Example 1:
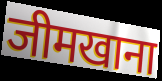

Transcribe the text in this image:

जीमखाना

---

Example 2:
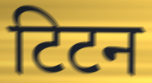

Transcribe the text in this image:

टिटन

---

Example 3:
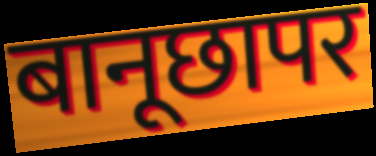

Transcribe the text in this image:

बानूछापर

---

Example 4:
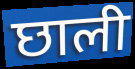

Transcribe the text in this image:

छाली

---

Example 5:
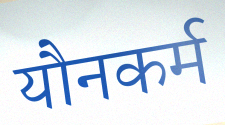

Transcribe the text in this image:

यौनकर्म